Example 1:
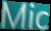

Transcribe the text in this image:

Mic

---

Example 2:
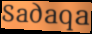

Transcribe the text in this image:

Sadaqa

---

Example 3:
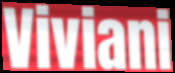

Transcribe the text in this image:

Viviani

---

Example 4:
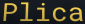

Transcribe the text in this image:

Plica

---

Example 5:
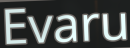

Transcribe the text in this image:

Evaru